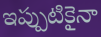
ఇప్పుటికైనా